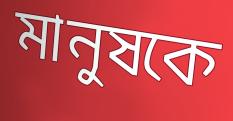
মানুষকে